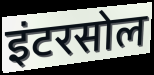
इंटरसोल